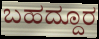
ಬಹದ್ದೂರ